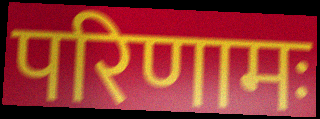
परिणामः